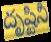
దృష్టినీ